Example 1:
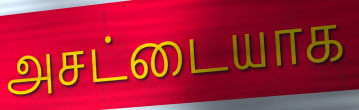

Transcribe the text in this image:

அசட்டையாக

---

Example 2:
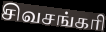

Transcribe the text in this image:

சிவசங்கரி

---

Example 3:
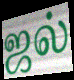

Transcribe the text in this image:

ஜல்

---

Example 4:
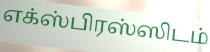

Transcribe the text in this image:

எக்ஸ்பிரஸ்ஸிடம்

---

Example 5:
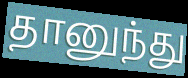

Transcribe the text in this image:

தானுந்து